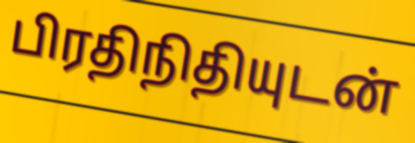
பிரதிநிதியுடன்